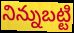
నిన్నుబట్టి